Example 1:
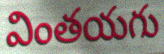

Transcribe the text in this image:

వింతయగు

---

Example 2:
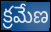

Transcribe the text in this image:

క్రమేణ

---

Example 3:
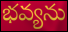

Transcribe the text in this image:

భవ్యను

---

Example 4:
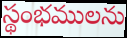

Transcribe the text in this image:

స్థంభములను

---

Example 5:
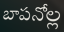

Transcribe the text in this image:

బాపనోల్ల